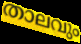
താലവും